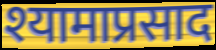
श्यामाप्रसाद